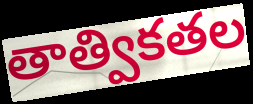
తాత్వికతల